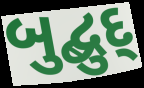
બુદ્બુદ્